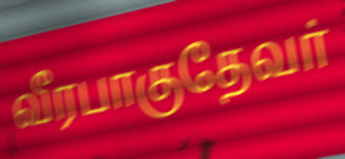
வீரபாகுதேவர்